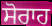
ਸੋਰਾਹ